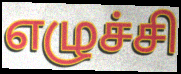
எழுச்சி